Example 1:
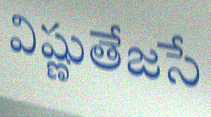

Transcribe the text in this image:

విష్ణుతేజసే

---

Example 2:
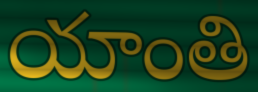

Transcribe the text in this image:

యాంతి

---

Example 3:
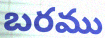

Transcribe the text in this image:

బరము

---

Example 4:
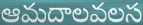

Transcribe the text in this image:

ఆమదాలవలస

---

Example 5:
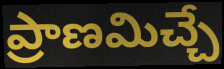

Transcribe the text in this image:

ప్రాణమిచ్చే